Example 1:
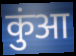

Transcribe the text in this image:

कुंआ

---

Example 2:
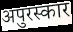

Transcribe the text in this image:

अपुरस्कार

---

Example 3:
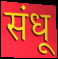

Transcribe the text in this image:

संधू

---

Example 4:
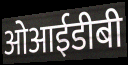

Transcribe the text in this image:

ओआईडीबी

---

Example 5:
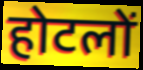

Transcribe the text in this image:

होटलों